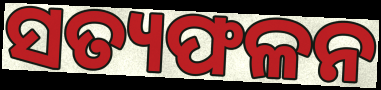
ସତ୍ୟଫଳନ